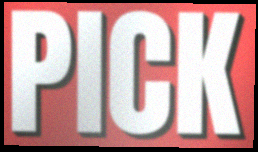
PICK